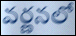
వర్ణనలో